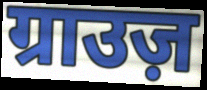
ग्राउज़